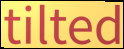
tilted